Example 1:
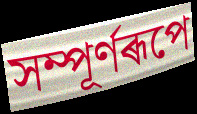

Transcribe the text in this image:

সম্পূৰ্ণৰূপে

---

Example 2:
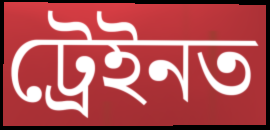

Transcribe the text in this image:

ট্ৰেইনত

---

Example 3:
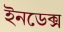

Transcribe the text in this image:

ইনডেক্স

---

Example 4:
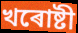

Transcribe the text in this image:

খৰোষ্টী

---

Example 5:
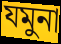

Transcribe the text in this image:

যমুনা